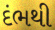
દંભથી